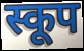
स्कूप